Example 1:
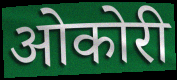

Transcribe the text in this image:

ओकोरी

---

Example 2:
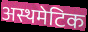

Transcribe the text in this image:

अस्थमेटिक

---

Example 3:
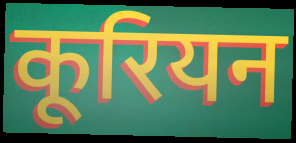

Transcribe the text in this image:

कूरियन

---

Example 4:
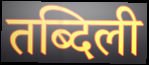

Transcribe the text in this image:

तब्दिली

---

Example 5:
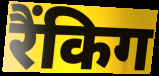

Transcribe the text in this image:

रैंकिग